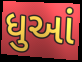
ધુઆં